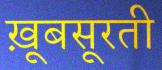
ख़ूबसूरती